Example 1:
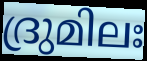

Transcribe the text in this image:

ദ്രുമിലഃ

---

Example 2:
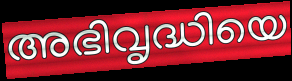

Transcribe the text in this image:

അഭിവൃദ്ധിയെ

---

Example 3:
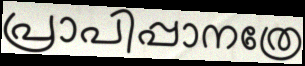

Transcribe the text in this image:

പ്രാപിപ്പാനത്രേ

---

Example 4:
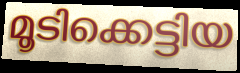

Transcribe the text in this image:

മൂടിക്കെട്ടിയ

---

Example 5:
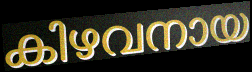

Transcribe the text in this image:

കിഴവനായ